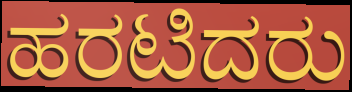
ಹರಟಿದರು